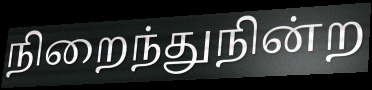
நிறைந்துநின்ற